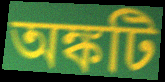
অঙ্কটি